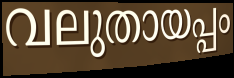
വലുതായപ്പം